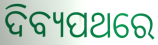
ଦିବ୍ୟପଥରେ